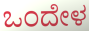
ಒಂದೇಳ